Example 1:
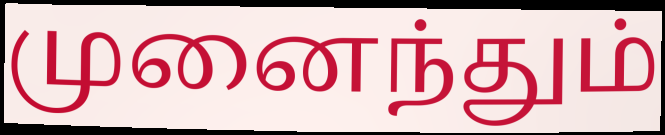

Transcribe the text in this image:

முனைந்தும்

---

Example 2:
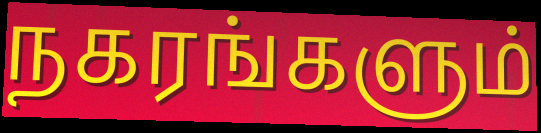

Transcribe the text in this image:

நகரங்களும்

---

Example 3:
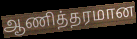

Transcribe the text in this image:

ஆணித்தரமான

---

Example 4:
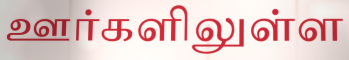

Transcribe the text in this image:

ஊர்களிலுள்ள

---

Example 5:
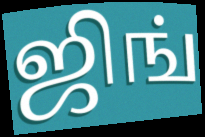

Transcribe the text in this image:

ஜிங்